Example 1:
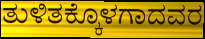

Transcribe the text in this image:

ತುಳಿತಕ್ಕೊಳಗಾದವರ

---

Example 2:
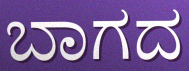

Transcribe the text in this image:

ಬಾಗದ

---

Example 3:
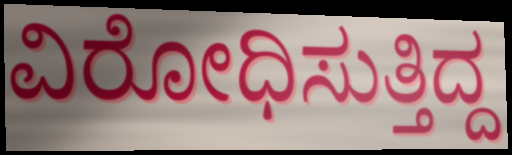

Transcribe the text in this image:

ವಿರೋಧಿಸುತ್ತಿದ್ದ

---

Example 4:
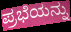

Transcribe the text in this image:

ಪ್ರಭೆಯನ್ನು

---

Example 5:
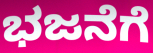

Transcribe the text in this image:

ಭಜನೆಗೆ